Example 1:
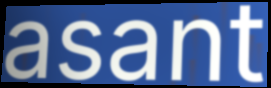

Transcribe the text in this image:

asant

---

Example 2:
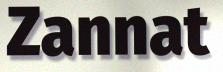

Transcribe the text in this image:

Zannat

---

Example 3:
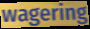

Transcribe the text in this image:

wagering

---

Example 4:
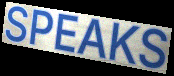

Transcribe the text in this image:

SPEAKS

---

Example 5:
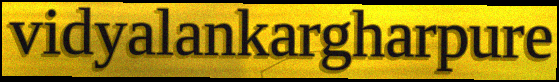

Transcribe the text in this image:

vidyalankargharpure